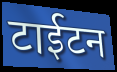
टाईटन